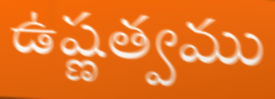
ఉష్ణత్వము